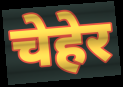
चेहेर